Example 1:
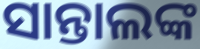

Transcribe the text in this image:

ସାନ୍ତାଲଙ୍କ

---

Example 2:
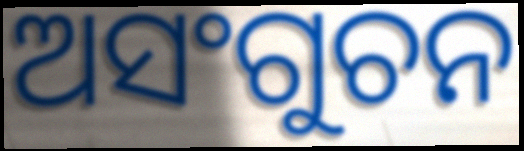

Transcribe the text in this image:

ଅସଂଗୁଚନ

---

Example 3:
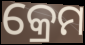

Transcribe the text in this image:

କ୍ରେମ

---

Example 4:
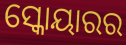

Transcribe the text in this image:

ସ୍କୋୟାରର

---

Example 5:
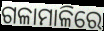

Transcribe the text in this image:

ଗଳାମାଳିରେ